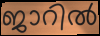
ജാറിൽ